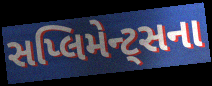
સપ્લિમેન્ટ્સના